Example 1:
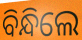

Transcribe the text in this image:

ବିନ୍ଧିଲେ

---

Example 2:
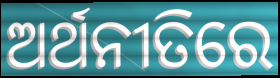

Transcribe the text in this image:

ଅର୍ଥନୀତିରେ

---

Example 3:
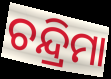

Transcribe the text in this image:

ଚନ୍ଦ୍ରିମା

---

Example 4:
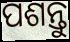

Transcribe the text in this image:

ପଶନ୍ତୁ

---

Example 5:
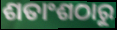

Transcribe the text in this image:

ଶତାଂଶଠାରୁ